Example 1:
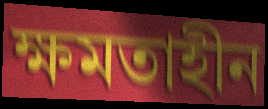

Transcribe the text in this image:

ক্ষমতাহীন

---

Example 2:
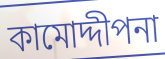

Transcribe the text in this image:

কামোদ্দীপনা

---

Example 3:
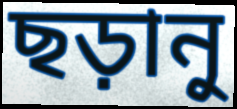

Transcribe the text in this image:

ছড়ানু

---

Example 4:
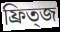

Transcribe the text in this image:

ফ্রিত্জ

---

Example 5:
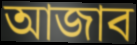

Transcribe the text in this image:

আজাব